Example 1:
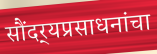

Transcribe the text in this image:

सौंदर्यप्रसाधनांचा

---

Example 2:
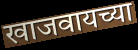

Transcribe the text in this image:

खाजवायच्या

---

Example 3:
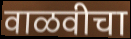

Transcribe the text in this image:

वाळवीचा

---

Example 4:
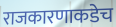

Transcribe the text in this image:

राजकारणाकडेच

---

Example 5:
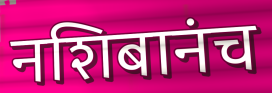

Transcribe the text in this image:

नशिबानंच